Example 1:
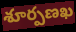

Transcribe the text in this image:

శూర్పణఖ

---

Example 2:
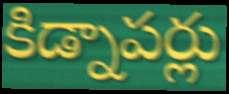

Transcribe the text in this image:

కిడ్నాపర్లు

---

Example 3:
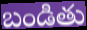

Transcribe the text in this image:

బండితు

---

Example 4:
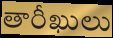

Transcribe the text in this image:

తారీఖులు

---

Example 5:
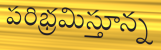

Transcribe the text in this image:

పరిభ్రమిస్తూన్న